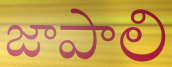
జాపాలి